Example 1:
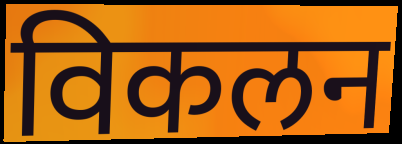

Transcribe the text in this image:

विकलन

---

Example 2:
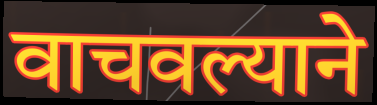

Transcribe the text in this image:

वाचवल्याने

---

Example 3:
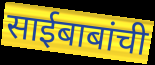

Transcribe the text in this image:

साईबाबांची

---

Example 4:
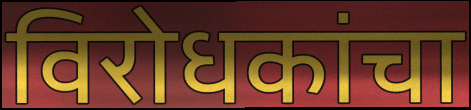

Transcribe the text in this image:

विरोधकांचा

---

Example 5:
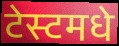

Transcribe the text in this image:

टेस्टमधे